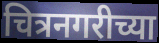
चित्रनगरीच्या